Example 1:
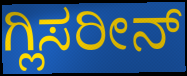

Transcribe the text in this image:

ಗ್ಲಿಸರೀನ್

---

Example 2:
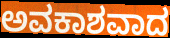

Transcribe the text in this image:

ಅವಕಾಶವಾದ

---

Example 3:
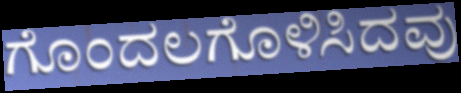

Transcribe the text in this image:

ಗೊಂದಲಗೊಳಿಸಿದವು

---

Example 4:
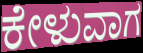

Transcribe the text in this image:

ಕೇಳುವಾಗ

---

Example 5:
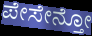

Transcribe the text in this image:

ಪೇಸೇನ್ತೋ